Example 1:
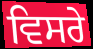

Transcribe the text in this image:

ਵਿਸਰੇ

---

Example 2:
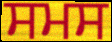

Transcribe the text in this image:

ਸਮਸ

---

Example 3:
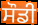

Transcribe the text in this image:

ਸੌਡੀ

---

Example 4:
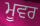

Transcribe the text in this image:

ਮੂਵਰ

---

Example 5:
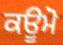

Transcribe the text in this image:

ਕਊਮੋ